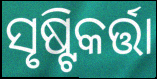
ସୃଷ୍ଟିକର୍ତ୍ତା